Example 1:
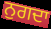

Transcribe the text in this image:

ਨੁਗਦਾ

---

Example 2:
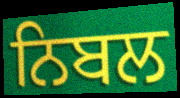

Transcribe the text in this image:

ਨਿਬਲ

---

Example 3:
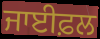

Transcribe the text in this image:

ਜਾਈਫ਼ਲ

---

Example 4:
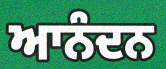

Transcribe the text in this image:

ਆਨੰਦਨ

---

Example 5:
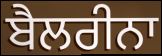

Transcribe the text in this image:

ਬੈਲਰੀਨਾ